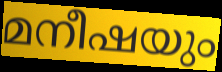
മനീഷയും